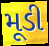
મૂડી